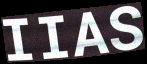
IIAS